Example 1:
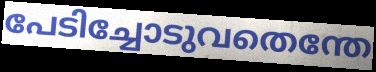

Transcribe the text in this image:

പേടിച്ചോടുവതെന്തേ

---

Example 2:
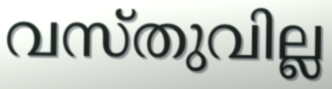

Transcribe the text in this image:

വസ്തുവില്ല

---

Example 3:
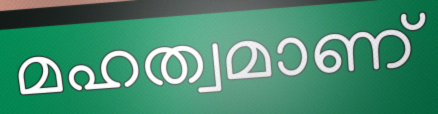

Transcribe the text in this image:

മഹത്വമാണ്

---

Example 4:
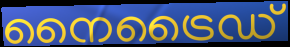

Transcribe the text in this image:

നൈട്രൈഡ്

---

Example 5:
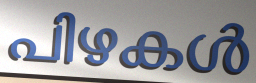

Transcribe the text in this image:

പിഴകൾ